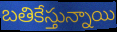
బతికేస్తున్నాయి